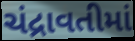
ચંદ્રાવતીમાં